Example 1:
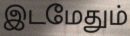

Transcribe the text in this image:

இடமேதும்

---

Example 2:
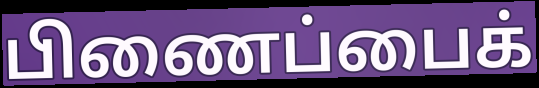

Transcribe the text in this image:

பிணைப்பைக்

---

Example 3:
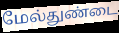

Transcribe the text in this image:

மேல்துண்டை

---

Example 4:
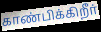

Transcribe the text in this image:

காண்பிக்கிறீர்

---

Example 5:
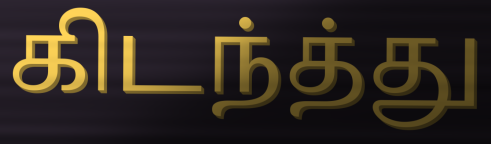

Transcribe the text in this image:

கிடந்த்து